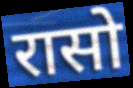
रासो